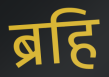
ब्रहि